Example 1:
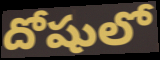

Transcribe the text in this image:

దోషులో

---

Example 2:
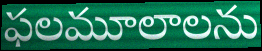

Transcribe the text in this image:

ఫలమూలాలను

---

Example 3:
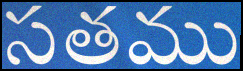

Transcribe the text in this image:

సతము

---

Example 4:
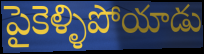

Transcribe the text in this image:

పైకెళ్ళిపోయాడు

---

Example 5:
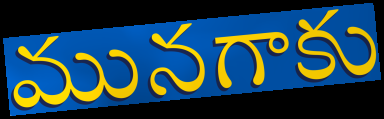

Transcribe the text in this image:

మునగాకు